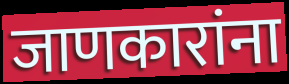
जाणकारांना